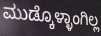
ಮುಡ್ಕೊಳ್ಳಾಂಗಿಲ್ಲ